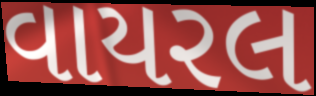
વાયરલ